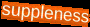
suppleness